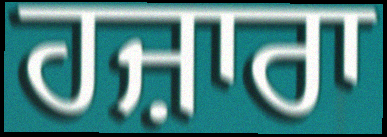
ਹਜ਼ਾਰਾ